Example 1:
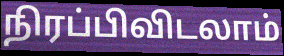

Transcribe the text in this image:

நிரப்பிவிடலாம்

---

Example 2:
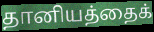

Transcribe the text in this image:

தானியத்தைக்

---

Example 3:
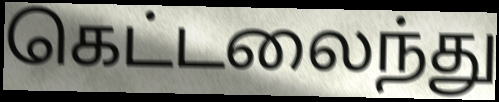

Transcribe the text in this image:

கெட்டலைந்து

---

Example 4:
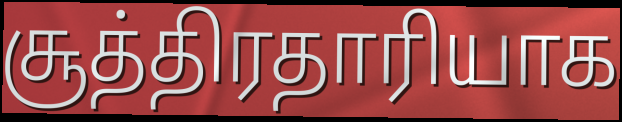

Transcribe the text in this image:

சூத்திரதாரியாக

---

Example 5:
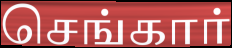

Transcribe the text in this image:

செங்கார்